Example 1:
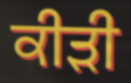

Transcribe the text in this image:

ਕੀੜੀ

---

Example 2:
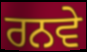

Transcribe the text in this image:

ਰਨਵੇ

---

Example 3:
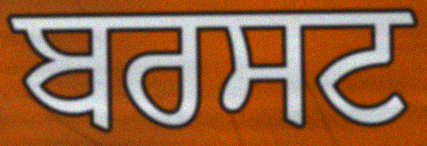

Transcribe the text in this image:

ਬਰਸਟ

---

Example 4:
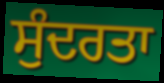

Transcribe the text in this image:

ਸੁੰਦਰਤਾ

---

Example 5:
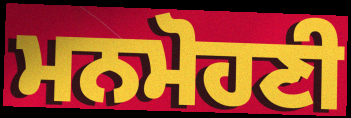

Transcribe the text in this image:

ਮਨਮੋਹਣੀ